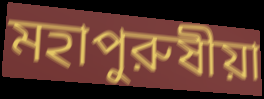
মহাপুৰুষীয়া